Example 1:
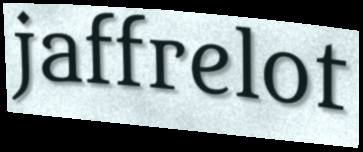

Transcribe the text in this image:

jaffrelot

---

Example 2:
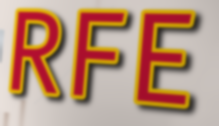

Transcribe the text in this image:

RFE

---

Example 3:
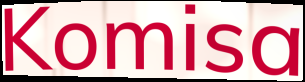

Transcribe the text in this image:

Komisa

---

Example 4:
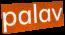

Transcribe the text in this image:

palav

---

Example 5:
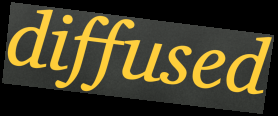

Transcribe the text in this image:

diffused